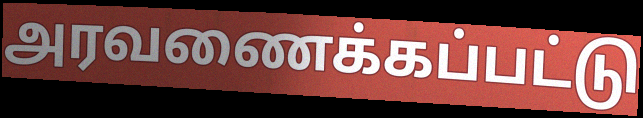
அரவணைக்கப்பட்டு